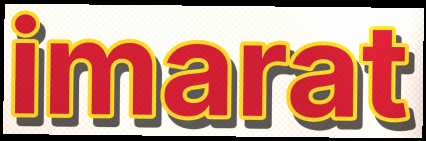
imarat